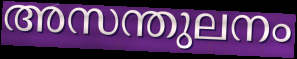
അസന്തുലനം